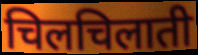
चिलचिलाती